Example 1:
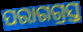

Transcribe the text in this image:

ପରାଗଗ୍ରସ୍ତ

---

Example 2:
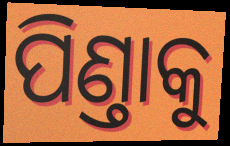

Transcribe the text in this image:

ପିଣ୍ତାକୁ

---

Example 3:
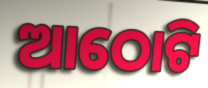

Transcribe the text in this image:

ଆଠୋଟି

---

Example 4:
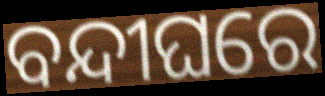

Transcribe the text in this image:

ବନ୍ଦୀଘରେ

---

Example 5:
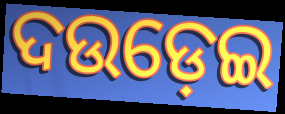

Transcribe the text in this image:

ଦଉଡ଼େଇ